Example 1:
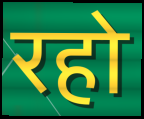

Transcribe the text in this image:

रहो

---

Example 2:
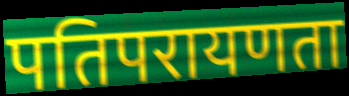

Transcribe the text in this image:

पतिपरायणता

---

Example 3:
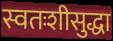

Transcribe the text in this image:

स्वतःशीसुद्धा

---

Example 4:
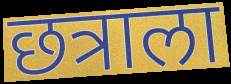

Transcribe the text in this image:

छत्राला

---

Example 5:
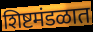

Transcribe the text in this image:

शिष्टमंडळात